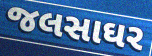
જલસાઘર